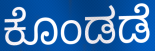
ಕೊಂಡಡೆ